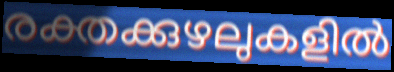
രക്തക്കുഴലുകളിൽ